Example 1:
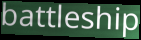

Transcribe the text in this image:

battleship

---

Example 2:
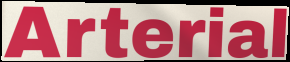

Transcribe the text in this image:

Arterial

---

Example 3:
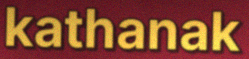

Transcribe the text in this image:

kathanak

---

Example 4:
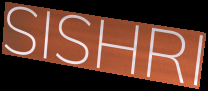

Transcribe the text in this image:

SISHRI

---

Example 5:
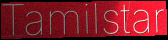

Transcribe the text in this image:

Tamilstar